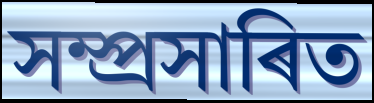
সম্প্ৰসাৰিত